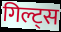
गिल्ट्स